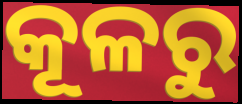
କୂଳରୁ